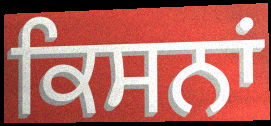
ਕਿਸਨਾਂ